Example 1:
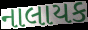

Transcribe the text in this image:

નાલાયક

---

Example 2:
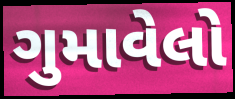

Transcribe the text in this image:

ગુમાવેલો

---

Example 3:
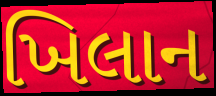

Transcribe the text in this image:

ખિલાન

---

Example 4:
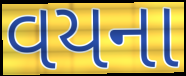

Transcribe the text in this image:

વયના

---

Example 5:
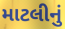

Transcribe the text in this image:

માટલીનું